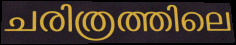
ചരിത്രത്തിലെ